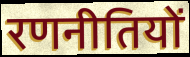
रणनीतियों